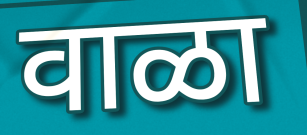
वाळा